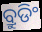
ବ୍ରୁଡିଂ